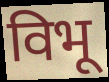
विभू